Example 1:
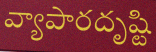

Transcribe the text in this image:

వ్యాపారదృష్టి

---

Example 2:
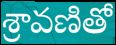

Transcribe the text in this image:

శ్రావణితో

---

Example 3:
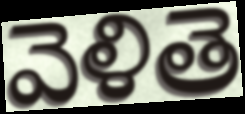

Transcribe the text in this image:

వెళితె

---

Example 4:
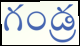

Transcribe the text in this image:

గండ్ర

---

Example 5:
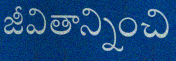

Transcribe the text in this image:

జీవితాన్నించి